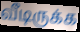
வீடிருக்க